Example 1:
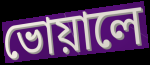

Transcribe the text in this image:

ভোয়ালে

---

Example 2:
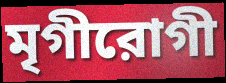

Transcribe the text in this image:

মৃগীরোগী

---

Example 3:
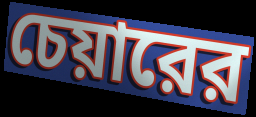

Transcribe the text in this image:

চেয়ারের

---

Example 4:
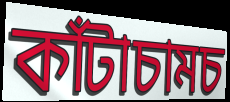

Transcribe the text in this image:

কাঁটাচামচ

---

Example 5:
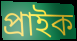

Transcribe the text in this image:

প্রাইক